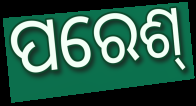
ପରେଶ୍